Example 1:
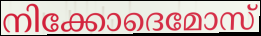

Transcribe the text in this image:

നിക്കോദെമോസ്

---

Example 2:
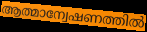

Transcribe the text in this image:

ആത്മാന്വേഷണത്തിൽ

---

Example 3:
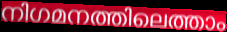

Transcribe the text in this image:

നിഗമനത്തിലെത്താം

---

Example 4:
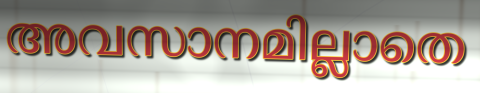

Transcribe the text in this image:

അവസാനമില്ലാതെ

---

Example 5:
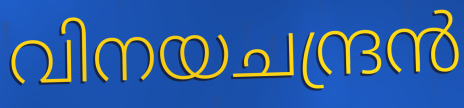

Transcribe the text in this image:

വിനയചന്ദ്രൻ